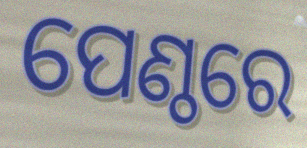
ପେଣ୍ଠରେ